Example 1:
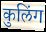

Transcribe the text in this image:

कुलिंग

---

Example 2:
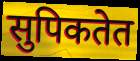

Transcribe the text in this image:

सुपिकतेत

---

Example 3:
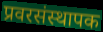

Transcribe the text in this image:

प्रवरसंस्थापक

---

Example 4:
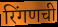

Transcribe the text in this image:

रिंगणची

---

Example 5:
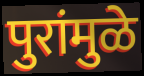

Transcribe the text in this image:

पुरांमुळे